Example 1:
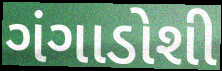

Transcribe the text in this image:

ગંગાડોશી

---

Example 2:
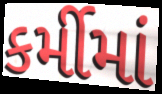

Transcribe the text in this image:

કર્મીમાં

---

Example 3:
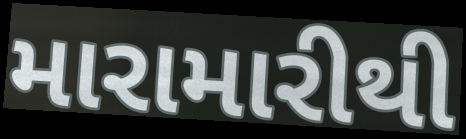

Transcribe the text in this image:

મારામારીથી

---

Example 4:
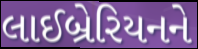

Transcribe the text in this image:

લાઈબ્રેરિયનને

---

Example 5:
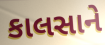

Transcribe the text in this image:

કાલસાને